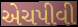
એચપીવી